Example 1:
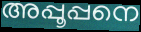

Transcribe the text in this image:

അപ്പൂപ്പനെ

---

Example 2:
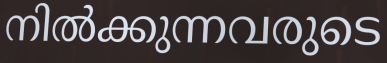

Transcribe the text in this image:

നിൽക്കുന്നവരുടെ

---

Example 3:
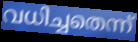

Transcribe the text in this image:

വധിച്ചതെന്ന്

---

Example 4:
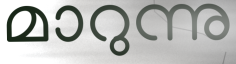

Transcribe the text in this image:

മാറുന്നു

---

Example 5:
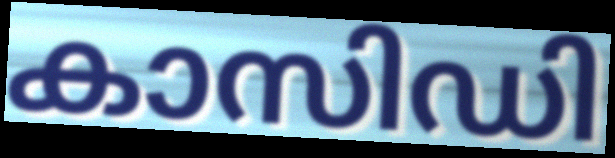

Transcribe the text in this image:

കാസിഡി